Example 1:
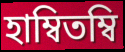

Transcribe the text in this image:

হাম্বিতম্বি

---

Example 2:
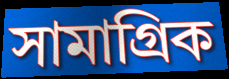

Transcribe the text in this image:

সামাগ্রিক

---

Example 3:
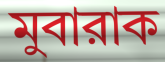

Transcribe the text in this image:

মুবারাক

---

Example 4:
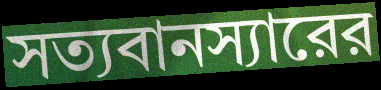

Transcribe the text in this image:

সত্যবানস্যারের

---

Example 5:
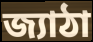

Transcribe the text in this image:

জ্যাঠা